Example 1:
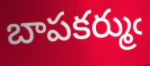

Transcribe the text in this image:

బాపకర్ముఁ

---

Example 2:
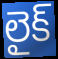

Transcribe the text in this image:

లైక్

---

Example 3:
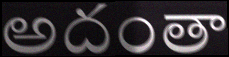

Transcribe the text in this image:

అదంతా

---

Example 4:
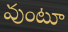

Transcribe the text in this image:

వుంటూ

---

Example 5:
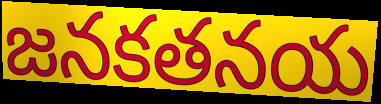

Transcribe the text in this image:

జనకతనయ